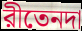
রীতেনদা